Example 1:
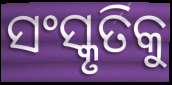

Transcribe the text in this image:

ସଂସ୍କୃତିକୁ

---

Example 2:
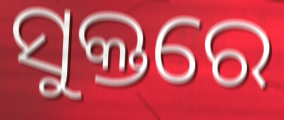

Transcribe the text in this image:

ସୁକ୍ତରେ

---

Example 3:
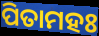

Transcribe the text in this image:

ପିତାମହଃ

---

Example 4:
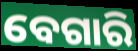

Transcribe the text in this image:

ବେଗାରି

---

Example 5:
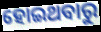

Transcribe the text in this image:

ହୋଇଥବାରୁ